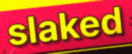
slaked